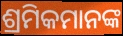
ଶ୍ରମିକମାନଙ୍କ